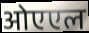
ओएएल